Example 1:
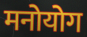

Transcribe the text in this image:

मनोयोग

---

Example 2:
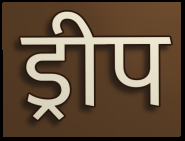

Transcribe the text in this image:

ड्रीप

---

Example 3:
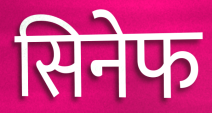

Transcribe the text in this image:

सिनेफ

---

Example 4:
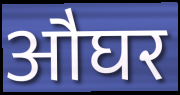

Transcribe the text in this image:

औघर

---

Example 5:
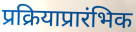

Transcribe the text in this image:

प्रक्रियाप्रारंभिक